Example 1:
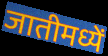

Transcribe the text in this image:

जातीमध्यें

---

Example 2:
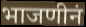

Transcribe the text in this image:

भाजणीनं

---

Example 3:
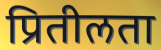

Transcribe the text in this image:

प्रितीलता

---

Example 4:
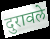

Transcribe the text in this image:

दुरावले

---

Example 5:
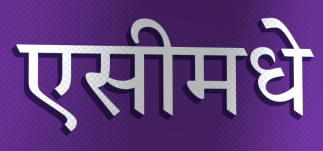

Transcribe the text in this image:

एसीमधे